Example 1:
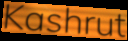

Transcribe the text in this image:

Kashrut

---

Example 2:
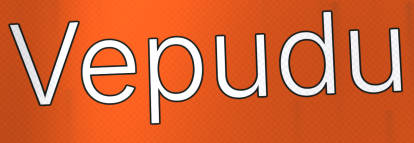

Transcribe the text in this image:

Vepudu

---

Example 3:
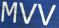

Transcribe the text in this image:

MVV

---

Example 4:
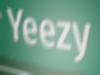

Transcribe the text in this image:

Yeezy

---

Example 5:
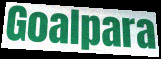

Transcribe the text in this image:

Goalpara